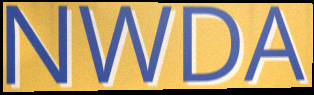
NWDA